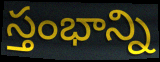
స్తంభాన్ని